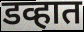
डव्हात